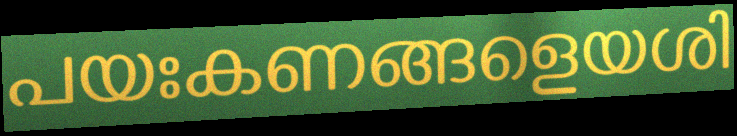
പയഃകണങ്ങളെയശി